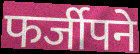
फर्जीपने